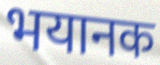
भयानक